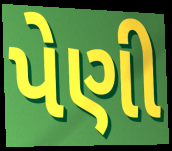
પેણી